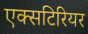
एक्सटिरियर